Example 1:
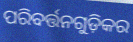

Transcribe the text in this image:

ପରିବର୍ତ୍ତନଗୁଡ଼ିକର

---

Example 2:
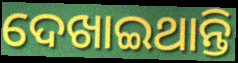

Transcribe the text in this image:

ଦେଖାଇଥାନ୍ତି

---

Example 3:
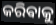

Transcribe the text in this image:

କରିଵାକୁ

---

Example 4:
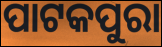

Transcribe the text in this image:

ପାଟକପୁରା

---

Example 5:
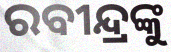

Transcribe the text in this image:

ରବୀନ୍ଦ୍ରଙ୍କୁ